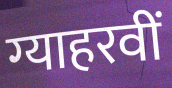
ग्याहरवीं